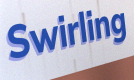
Swirling